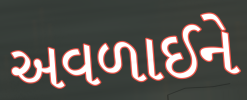
અવળાઈને